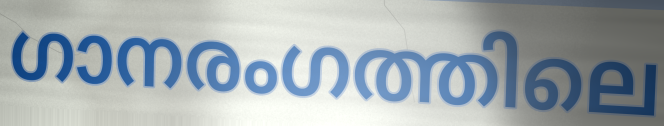
ഗാനരംഗത്തിലെ